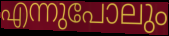
എന്നുപോലും